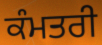
ਕੰਮਤਰੀ